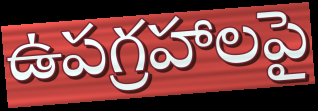
ఉపగ్రహాలపై